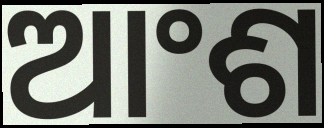
ଆଂଶ